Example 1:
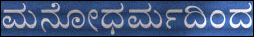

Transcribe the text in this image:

ಮನೋಧರ್ಮದಿಂದ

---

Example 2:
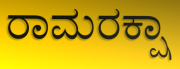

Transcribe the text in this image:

ರಾಮರಕ್ಷಾ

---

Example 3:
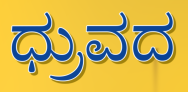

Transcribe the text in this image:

ಧ್ರುವದ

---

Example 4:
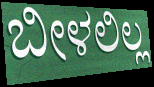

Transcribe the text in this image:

ಬೀಳಲಿಲ್ಲ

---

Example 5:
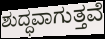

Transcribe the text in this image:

ಶುದ್ಧವಾಗುತ್ತವೆ